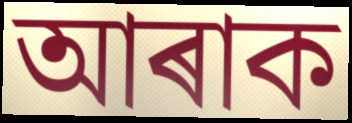
আৰাক